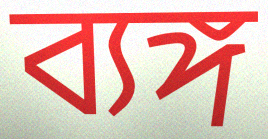
ব্যঙ্গ